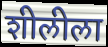
शीलीला